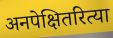
अनपेक्षितरित्या